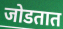
जोडतात